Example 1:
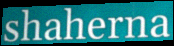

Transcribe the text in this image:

shaherna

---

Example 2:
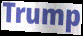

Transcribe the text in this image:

Trump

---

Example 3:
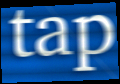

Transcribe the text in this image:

tap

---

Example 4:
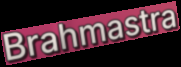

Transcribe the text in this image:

Brahmastra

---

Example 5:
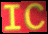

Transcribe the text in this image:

IC